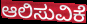
ಆಲಿಸುವಿಕೆ